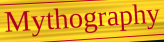
Mythography